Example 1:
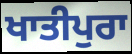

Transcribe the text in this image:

ਖਾਤੀਪੁਰਾ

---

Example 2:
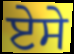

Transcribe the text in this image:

ਏਸੇ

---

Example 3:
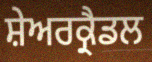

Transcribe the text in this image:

ਸ਼ੇਅਰਕ੍ਰੈਡਲ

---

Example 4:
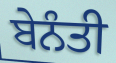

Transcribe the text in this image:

ਬੇਨੰਤੀ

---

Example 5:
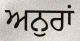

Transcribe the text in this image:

ਅਨੁਰਾਂ